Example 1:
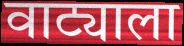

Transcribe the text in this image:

वाट्याला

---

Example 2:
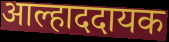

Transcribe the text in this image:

आल्हाददायक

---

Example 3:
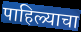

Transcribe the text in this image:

पाहिल्याचा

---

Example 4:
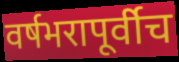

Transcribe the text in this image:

वर्षभरापूर्वीच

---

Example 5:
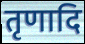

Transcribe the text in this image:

तृणादि